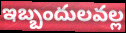
ఇబ్బందులవల్ల